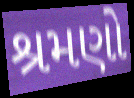
શ્રમણો